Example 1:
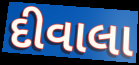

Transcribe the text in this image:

દીવાલા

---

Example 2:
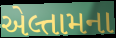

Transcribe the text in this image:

એલ્તામના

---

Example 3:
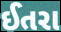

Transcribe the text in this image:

ઈતરા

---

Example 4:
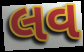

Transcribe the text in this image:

લવ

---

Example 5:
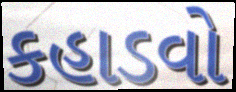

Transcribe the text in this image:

કહાડવો